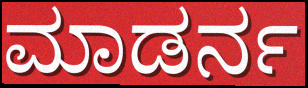
ಮಾಡರ್ನ